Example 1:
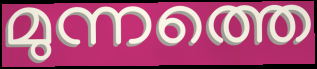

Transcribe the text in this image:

മുന്നത്തെ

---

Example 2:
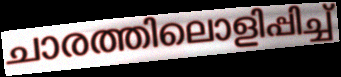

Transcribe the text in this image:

ചാരത്തിലൊളിപ്പിച്ച്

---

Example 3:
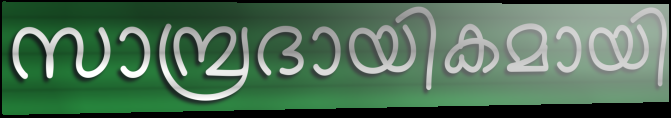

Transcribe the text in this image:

സാമ്പ്രദായികമായി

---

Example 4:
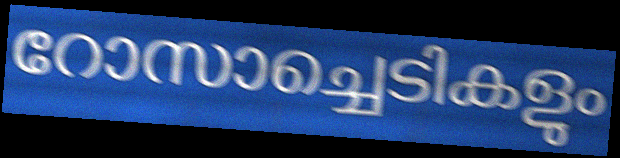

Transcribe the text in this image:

റോസാച്ചെടികളും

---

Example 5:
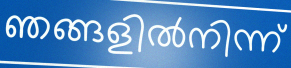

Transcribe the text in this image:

ഞങ്ങളിൽനിന്ന്